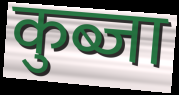
कुब्जा